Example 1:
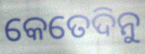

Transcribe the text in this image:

କେତେଦିନୁ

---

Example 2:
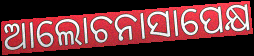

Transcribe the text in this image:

ଆଲୋଚନାସାପେକ୍ଷ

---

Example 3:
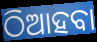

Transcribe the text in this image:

ଠିଆହବା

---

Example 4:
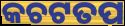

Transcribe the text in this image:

କଚଟତପ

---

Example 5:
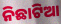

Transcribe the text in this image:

ନିଛାଟିଆ